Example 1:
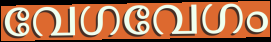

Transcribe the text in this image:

വേഗവേഗം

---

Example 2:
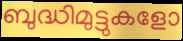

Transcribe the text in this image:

ബുദ്ധിമുട്ടുകളോ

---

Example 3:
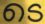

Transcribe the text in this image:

ടെ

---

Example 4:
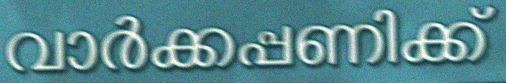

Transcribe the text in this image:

വാർക്കപ്പണിക്ക്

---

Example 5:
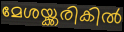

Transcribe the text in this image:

മേശയ്ക്കരികിൽ